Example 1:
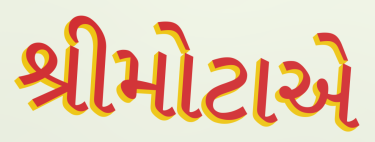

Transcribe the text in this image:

શ્રીમોટાએ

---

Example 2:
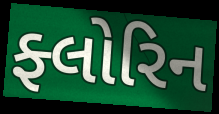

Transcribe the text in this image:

ફ્લોરિન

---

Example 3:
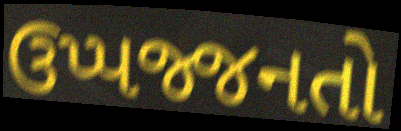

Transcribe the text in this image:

ઉપ્પજ્જનતો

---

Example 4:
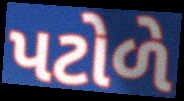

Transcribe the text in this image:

પટોળે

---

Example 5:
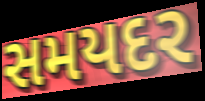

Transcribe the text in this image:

સમયદર